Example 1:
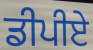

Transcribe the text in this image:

ਡੀਪੀਏ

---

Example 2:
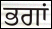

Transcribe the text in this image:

ਭਗਾਂ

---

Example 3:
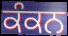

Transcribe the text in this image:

ਕੰਕਨ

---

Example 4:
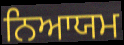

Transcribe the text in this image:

ਨਿਆਯਮ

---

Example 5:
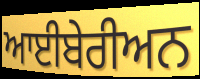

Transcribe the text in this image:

ਆਈਬੇਰੀਅਨ